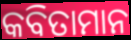
କବିତାମାନ